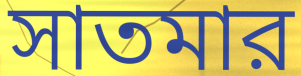
সাতমার